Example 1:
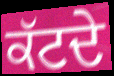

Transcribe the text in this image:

ਕੱਟਦੇ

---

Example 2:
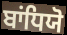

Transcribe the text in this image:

ਬਾਂਧਿਯੋ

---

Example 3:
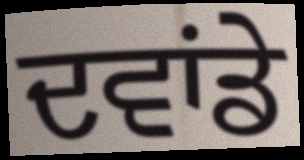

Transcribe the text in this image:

ਦਵਾਂਡੇ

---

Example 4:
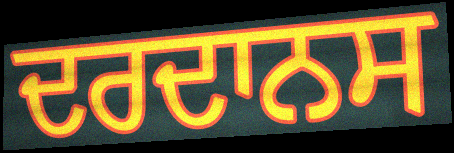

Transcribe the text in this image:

ਦਰਦਾਨਸ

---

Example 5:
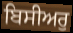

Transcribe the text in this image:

ਬਿਸੀਅਰੁ